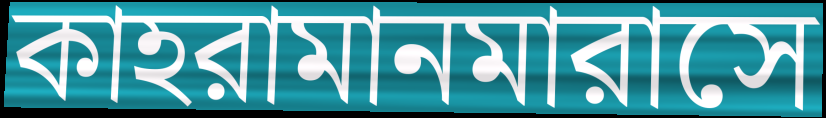
কাহরামানমারাসে